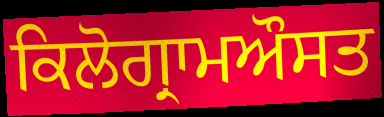
ਕਿਲੋਗ੍ਰਾਮਔਸਤ